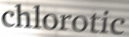
chlorotic